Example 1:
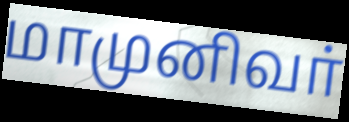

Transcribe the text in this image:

மாமுனிவர்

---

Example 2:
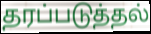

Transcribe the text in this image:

தரப்படுத்தல்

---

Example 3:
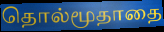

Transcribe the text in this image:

தொல்மூதாதை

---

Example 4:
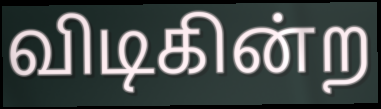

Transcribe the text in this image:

விடிகின்ற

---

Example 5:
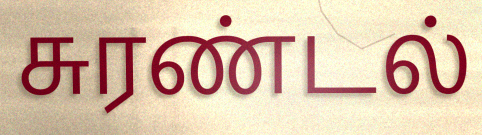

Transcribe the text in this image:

சுரண்டல்